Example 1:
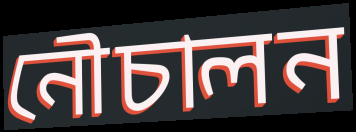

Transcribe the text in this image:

নৌচালন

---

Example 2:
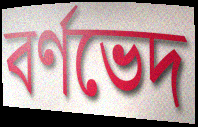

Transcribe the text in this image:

বর্ণভেদ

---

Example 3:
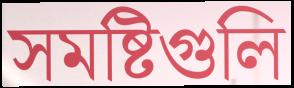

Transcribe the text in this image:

সমষ্টিগুলি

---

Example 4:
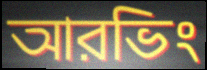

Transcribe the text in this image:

আরভিং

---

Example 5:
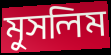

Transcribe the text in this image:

মুসলিম